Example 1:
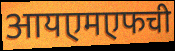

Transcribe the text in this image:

आयएमएफची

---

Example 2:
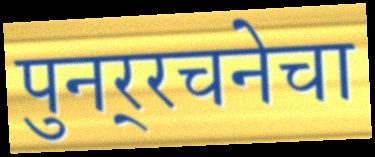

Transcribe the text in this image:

पुनर्रचनेचा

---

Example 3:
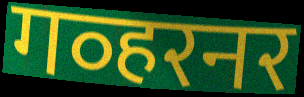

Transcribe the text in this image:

गव्हरनर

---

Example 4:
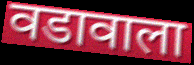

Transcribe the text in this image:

वडावाला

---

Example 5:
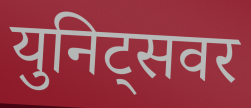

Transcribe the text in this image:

युनिट्सवर